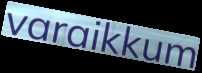
varaikkum